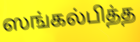
ஸங்கல்பித்த